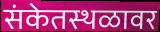
संकेतस्थळावर